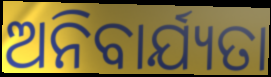
ଅନିବାର୍ଯ୍ୟତା